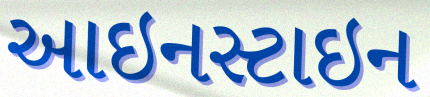
આઇનસ્ટાઇન